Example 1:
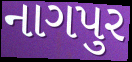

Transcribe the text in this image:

નાગપુર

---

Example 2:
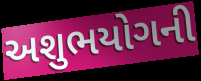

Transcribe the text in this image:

અશુભયોગની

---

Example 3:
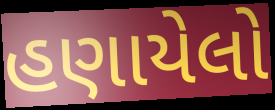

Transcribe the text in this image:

હણાયેલો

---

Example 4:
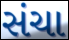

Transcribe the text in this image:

સંચા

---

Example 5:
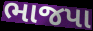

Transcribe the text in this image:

ભાજપા